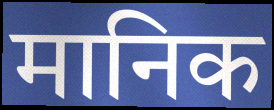
मानिक